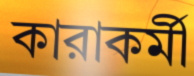
কারাকর্মী